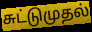
சுட்டுமுதல்